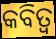
କବିତ୍ବ